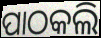
ପାଠକଲି